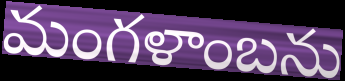
మంగళాంబను